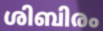
ശിബിരം